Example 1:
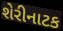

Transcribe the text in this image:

શેરીનાટક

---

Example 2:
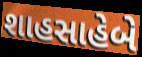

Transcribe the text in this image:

શાહસાહેબે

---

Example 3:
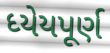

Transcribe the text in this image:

ધ્યેયપૂર્ણ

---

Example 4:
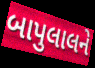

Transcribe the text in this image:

બાપુલાલને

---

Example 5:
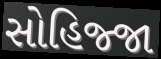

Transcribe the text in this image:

સોહિજ્જા